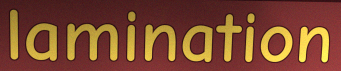
lamination